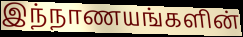
இந்நாணயங்களின்